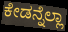
ಕೇಡನ್ನೆಲ್ಲಾ